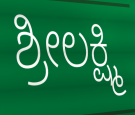
ಶ್ರೀಲಕ್ಷ್ಮಿ